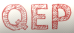
QEP